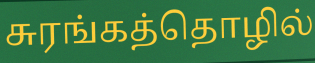
சுரங்கத்தொழில்